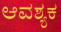
ಆವಶ್ಯಕ